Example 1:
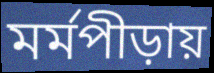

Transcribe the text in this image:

মর্মপীড়ায়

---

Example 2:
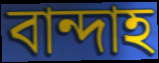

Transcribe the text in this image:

বান্দাহ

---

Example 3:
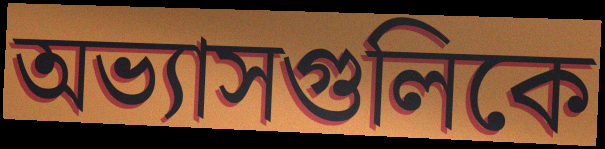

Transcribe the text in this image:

অভ্যাসগুলিকে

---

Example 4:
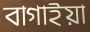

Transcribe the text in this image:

বাগাইয়া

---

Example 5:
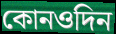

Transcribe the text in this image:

কোনওদিন